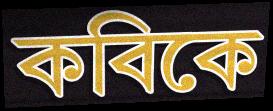
কবিকে